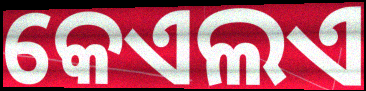
କେଏଲଏ